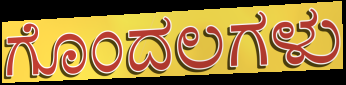
ಗೊಂದಲಗಳು